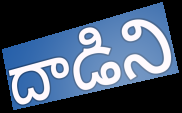
దాడిని